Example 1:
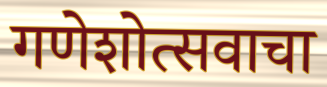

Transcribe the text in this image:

गणेशोत्सवाचा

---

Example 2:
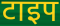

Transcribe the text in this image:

टाइप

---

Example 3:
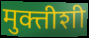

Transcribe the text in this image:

मुक्तीशी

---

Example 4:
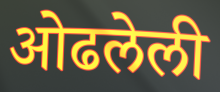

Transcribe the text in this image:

ओढलेली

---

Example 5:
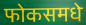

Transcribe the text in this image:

फोकसमधे